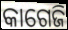
କାଗେଜି